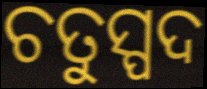
ଚତୁସ୍ପଦ